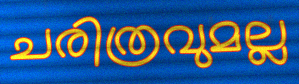
ചരിത്രവുമല്ല